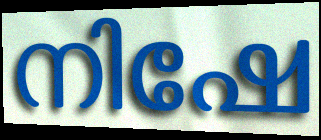
നിഷേ